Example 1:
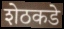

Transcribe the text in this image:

शेठकडे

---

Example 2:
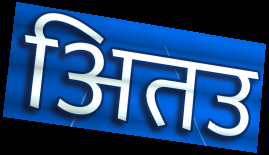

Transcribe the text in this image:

अितउ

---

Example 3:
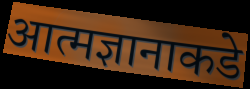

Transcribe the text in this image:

आत्मज्ञानाकडे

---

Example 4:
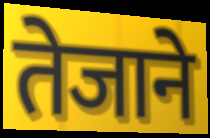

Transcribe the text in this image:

तेजाने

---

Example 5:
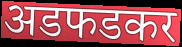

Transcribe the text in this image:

अडफडकर